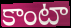
కాంటా